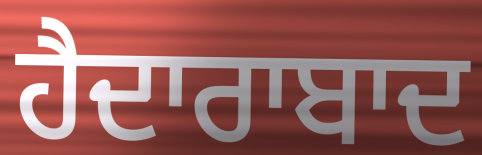
ਹੈਦਾਰਾਬਾਦ